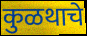
कुळथाचे